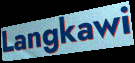
Langkawi